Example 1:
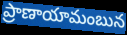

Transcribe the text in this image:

ప్రాణాయామంబున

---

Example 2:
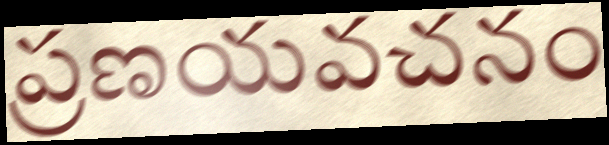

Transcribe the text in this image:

ప్రణయవచనం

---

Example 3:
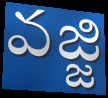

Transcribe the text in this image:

వజ్జి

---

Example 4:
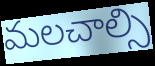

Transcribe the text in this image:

మలచాల్సి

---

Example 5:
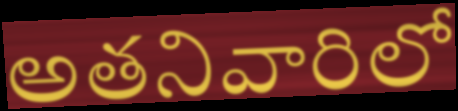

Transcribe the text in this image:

అతనివారిలో